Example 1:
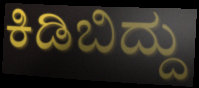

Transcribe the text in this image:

ಕಿಡಿಬಿದ್ದು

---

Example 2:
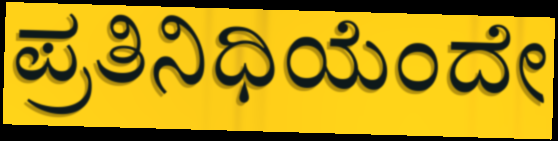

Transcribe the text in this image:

ಪ್ರತಿನಿಧಿಯೆಂದೇ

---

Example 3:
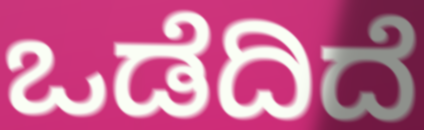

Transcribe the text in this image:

ಒಡೆದಿದೆ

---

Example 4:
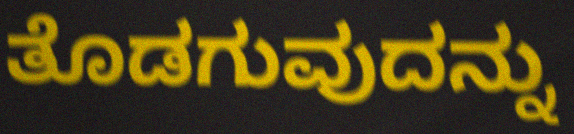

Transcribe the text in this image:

ತೊಡಗುವುದನ್ನು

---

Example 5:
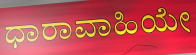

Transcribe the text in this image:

ಧಾರಾವಾಹಿಯೇ